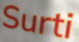
Surti